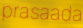
prasaada